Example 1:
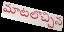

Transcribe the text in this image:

మాటలొచ్చిన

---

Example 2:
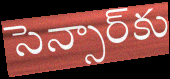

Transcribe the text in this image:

సెన్సార్‌కు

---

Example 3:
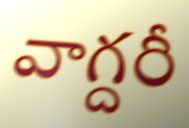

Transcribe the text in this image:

వాగ్దరీ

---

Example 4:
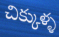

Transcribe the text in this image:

చిక్కుళ్ళ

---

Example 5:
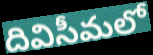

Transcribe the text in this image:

దివిసీమలో